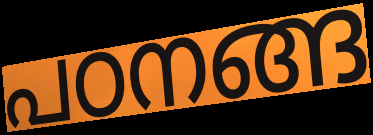
പഠനങ്ങ